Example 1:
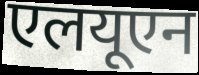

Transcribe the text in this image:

एलयूएन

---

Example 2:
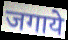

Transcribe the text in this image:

जगाये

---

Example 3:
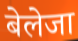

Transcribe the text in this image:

बेलेजा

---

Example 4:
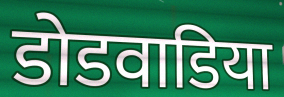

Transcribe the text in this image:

डोडवाडिया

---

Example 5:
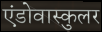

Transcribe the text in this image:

एंडोवास्कुलर